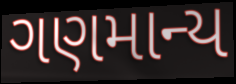
ગણમાન્ય